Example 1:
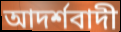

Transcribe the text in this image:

আদর্শবাদী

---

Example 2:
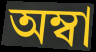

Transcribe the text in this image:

অম্বা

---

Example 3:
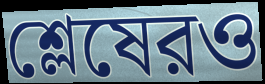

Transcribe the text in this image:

শ্লেষেরও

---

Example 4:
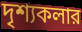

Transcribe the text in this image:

দৃশ্যকলার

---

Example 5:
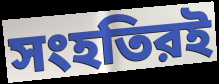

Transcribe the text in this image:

সংহতিরই